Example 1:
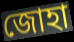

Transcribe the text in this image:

জোহা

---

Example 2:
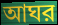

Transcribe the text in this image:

আঘর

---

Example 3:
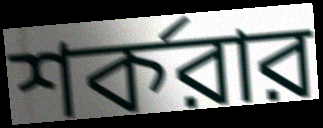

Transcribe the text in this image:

শর্করার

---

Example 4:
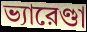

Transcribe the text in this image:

ভ্যারেণ্ডা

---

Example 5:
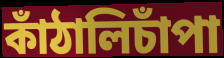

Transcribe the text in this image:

কাঁঠালিচাঁপা